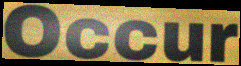
Occur